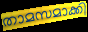
താമസമാക്കി